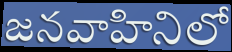
జనవాహినిలో